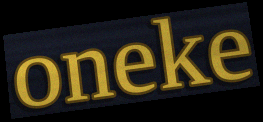
oneke